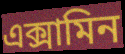
এক্সামিন